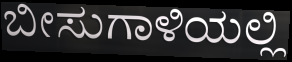
ಬೀಸುಗಾಳಿಯಲ್ಲಿ